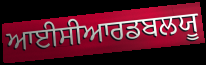
ਆਈਸੀਆਰਡਬਲਯੂ